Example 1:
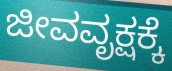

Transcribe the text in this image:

ಜೀವವೃಕ್ಷಕ್ಕೆ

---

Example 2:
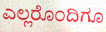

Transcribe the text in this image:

ಎಲ್ಲರೊಂದಿಗೂ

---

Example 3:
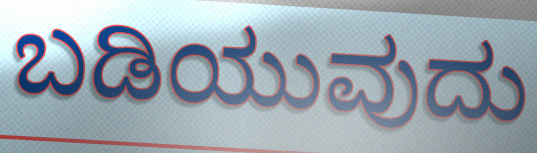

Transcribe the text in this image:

ಬಡಿಯುವುದು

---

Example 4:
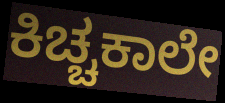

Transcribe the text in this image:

ಕಿಚ್ಚಕಾಲೇ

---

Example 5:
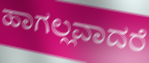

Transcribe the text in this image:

ಹಾಗಲ್ಲವಾದರೆ